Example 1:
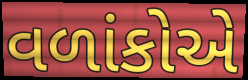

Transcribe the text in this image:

વળાંકોએ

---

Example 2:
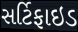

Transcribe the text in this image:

સર્ટિફાઇડ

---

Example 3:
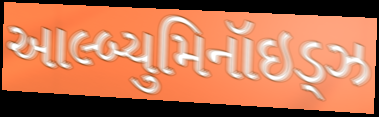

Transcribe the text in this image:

આલ્બ્યુમિનૉઇડ્ઝ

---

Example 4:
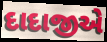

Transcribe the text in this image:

દાદાજીએ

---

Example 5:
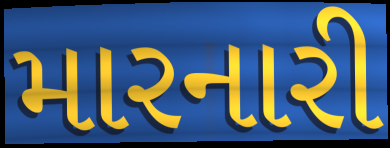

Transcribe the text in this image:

મારનારી